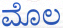
ಮೊಲ